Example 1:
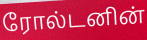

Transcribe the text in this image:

ரோல்டனின்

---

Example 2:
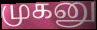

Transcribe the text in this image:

முகனு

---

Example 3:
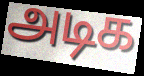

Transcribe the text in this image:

அடிக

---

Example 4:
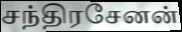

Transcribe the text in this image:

சந்திரசேனன்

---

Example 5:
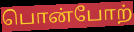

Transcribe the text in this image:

பொன்போற்